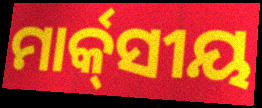
ମାର୍କ୍‍ସୀୟ